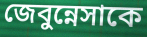
জেবুন্নেসাকে